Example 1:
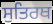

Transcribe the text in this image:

ਸੁਤਿਰਥ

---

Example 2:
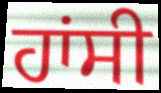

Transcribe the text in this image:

ਹਾਂਸੀ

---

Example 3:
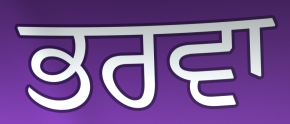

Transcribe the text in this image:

ਭਰਵਾ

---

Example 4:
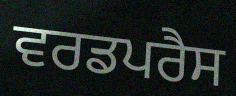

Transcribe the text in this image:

ਵਰਡਪਰੈਸ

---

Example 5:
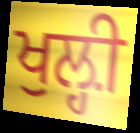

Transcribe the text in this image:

ਖੁਲ਼੍ਹੀ